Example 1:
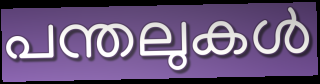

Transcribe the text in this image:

പന്തലുകൾ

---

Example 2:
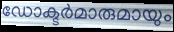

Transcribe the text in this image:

ഡോക്ടർമാരുമായും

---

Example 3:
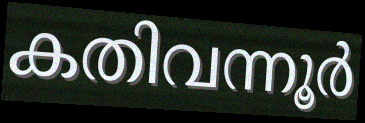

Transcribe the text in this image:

കതിവന്നൂർ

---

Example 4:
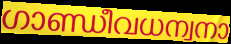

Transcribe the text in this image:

ഗാണ്ഡീവധന്വനാ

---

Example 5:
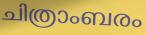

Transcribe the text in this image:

ചിത്രാംബരം